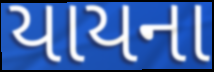
યાયના